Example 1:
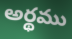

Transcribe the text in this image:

అర్థము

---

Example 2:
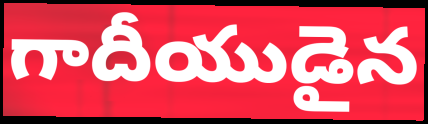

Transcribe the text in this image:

గాదీయుడైన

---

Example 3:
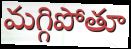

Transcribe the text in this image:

మగ్గిపోతూ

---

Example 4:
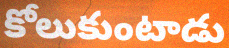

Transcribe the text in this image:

కోలుకుంటాడు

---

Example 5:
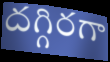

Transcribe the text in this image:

దగ్గిరగా